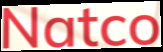
Natco